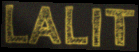
LALIT